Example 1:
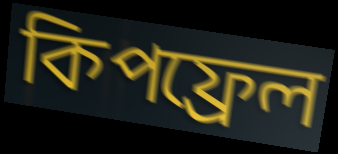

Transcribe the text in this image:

কিপফ্রেল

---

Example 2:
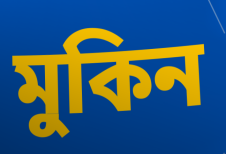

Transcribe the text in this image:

মুকিন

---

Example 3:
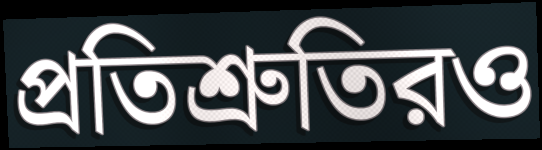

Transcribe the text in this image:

প্রতিশ্রুতিরও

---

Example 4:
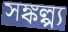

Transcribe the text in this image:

সঙ্কল্প্য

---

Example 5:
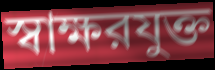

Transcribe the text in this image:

স্বাক্ষরযুক্ত